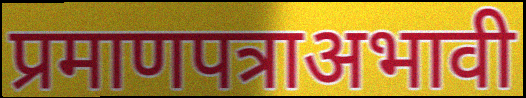
प्रमाणपत्राअभावी